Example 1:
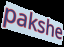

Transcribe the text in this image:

pakshe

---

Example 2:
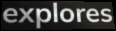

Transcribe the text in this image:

explores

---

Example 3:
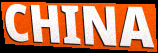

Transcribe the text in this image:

CHINA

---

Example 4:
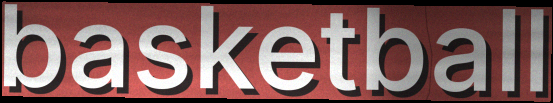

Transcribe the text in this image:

basketball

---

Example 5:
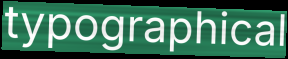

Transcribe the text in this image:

typographical